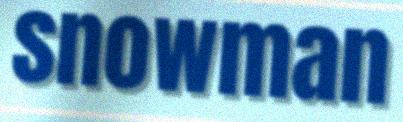
snowman